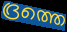
ദ്രത്തെ